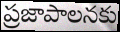
ప్రజాపాలనకు